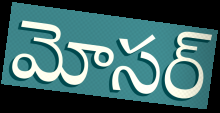
మోసర్